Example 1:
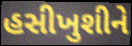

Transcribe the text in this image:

હસીખુશીને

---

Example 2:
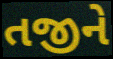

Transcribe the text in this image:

તજીને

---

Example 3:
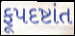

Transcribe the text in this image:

ફૂપદષ્ટાંત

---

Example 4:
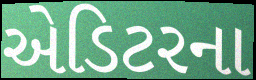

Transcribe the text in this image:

એડિટરના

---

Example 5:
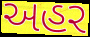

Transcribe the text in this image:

અહર